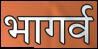
भागर्व